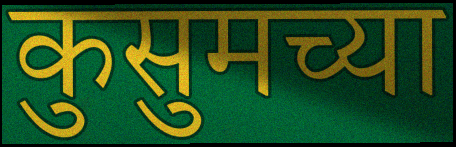
कुसुमच्या